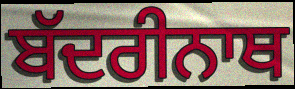
ਬੱਦਰੀਨਾਥ